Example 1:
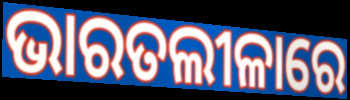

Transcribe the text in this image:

ଭାରତଲୀଳାରେ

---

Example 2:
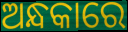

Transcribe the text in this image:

ଅନ୍ଧକାରେ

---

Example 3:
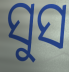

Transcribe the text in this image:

ସୁସ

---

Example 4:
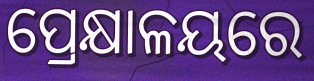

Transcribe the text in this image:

ପ୍ରେକ୍ଷାଳୟରେ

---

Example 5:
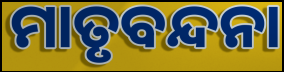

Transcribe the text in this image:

ମାତୃବନ୍ଦନା